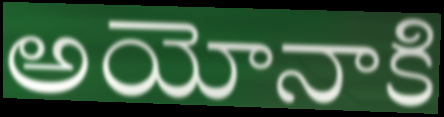
అయోనాకి